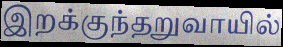
இறக்குந்தறுவாயில்